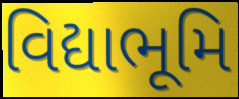
વિદ્યાભૂમિ